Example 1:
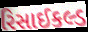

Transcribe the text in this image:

રિસાઈકલ્ડ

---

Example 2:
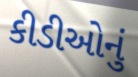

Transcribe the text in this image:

કીડીઓનું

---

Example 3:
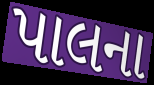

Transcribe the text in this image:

પાલના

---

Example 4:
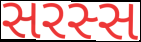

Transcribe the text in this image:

સરસ્સ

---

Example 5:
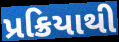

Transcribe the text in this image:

પ્રક્રિયાથી